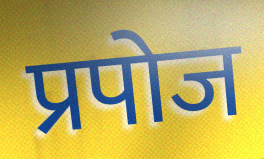
प्रपोज